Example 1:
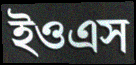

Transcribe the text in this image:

ইওএস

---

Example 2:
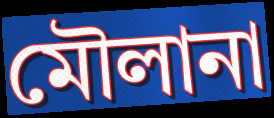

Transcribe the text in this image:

মৌলানা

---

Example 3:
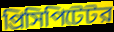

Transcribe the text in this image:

প্রিসিপিটেটর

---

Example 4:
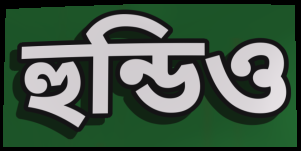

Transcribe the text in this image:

হুন্ডিও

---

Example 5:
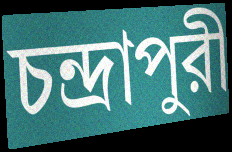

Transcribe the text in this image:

চন্দ্রাপুরী